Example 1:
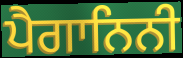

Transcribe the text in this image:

ਪੈਗਾਨਿਨੀ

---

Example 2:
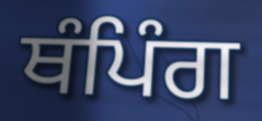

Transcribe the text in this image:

ਥੰਪਿੰਗ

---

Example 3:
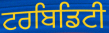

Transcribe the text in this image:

ਟਰਬਿਡਿਟੀ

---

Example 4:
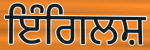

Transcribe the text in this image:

ਇੰਗਿਲਸ਼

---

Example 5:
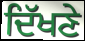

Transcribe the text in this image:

ਦਿੱਖਣੇ